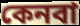
কেনবা